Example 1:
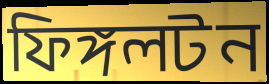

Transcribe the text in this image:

ফিঙ্গলটন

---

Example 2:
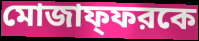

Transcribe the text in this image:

মোজাফ্ফরকে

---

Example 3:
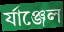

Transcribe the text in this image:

র্যাঞ্জেল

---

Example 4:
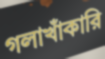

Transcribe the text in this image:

গলাখাঁকারি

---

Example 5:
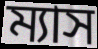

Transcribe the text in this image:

ম্যাস